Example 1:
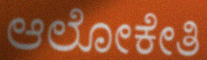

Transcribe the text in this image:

ಆಲೋಕೇತಿ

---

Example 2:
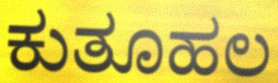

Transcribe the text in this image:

ಕುತೂಹಲ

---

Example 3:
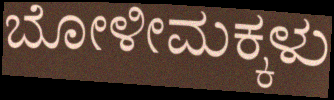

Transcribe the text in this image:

ಬೋಳೀಮಕ್ಕಳು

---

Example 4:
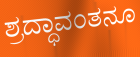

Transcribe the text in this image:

ಶ್ರದ್ಧಾವಂತನೂ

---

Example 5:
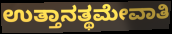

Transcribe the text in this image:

ಉತ್ತಾನತ್ಥಮೇವಾತಿ